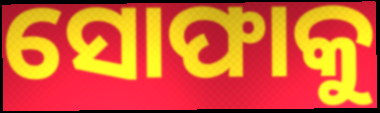
ସୋଫାକୁ